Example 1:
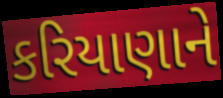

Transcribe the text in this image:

કરિયાણાને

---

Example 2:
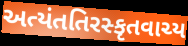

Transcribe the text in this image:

અત્યંતતિરસ્કૃતવાચ્ય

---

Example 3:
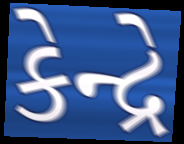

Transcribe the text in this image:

કેન્દ્રે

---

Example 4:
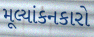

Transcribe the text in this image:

મૂલ્યાંકનકારો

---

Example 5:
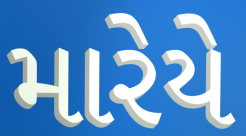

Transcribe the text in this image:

મારેયે